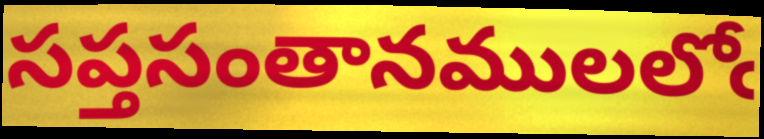
సప్తసంతానములలోఁ